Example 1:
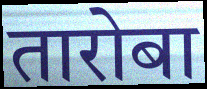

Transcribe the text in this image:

तारोबा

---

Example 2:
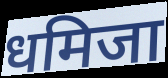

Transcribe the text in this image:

धमिजा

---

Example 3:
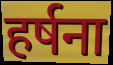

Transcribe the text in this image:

हर्षना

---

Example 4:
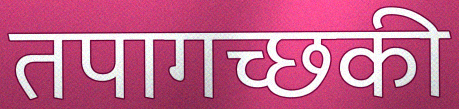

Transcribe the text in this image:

तपागच्छकी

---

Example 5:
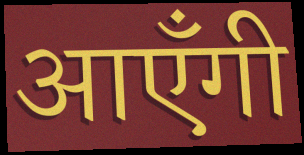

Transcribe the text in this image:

आएँगी